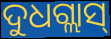
ଦୁଧଗ୍ଲାସ୍